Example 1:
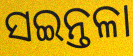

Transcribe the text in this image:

ସଇନ୍ତଳା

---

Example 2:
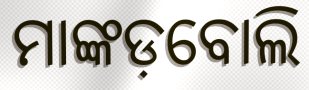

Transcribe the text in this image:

ମାଙ୍କଡ଼ବୋଲି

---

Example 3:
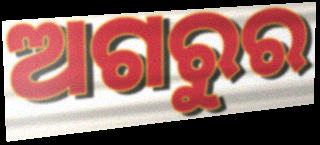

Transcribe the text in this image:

ଅଗରୁର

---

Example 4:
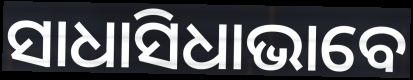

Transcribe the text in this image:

ସାଧାସିଧାଭାବେ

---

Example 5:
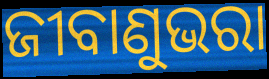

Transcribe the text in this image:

ଜୀବାଣୁଭରା